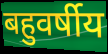
बहुवर्षीय